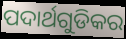
ପଦାର୍ଥଗୁଡିକର